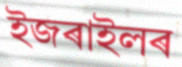
ইজৰাইলৰ